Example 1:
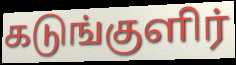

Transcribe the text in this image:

கடுங்குளிர்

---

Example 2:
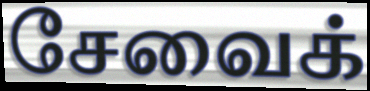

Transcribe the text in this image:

சேவைக்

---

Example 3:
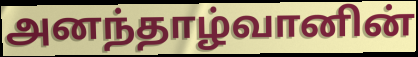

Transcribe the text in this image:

அனந்தாழ்வானின்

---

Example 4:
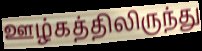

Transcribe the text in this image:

ஊழ்கத்திலிருந்து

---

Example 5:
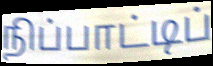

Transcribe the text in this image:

நிப்பாட்டிப்